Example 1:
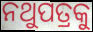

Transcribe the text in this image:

ନଥୁପତ୍ରକୁ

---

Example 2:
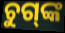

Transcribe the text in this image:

ଚୁଗ୍‌ଙ୍କ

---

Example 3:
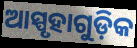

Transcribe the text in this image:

ଆସ୍ପୃହାଗୁଡ଼ିକ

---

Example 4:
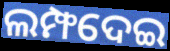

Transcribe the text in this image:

ଲମ୍ଫଦେଇ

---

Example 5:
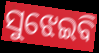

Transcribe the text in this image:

ସୁଝେଇବି